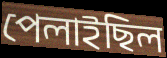
পেলাইছিল